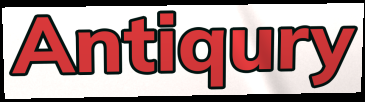
Antiqury